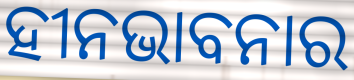
ହୀନଭାବନାର